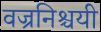
वज्रनिश्चयी